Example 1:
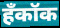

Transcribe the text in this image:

हँकॉक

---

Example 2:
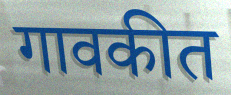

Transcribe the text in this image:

गावकीत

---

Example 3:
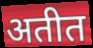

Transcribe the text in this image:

अतीत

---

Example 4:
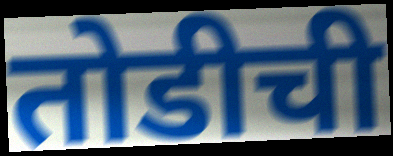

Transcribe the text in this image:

तोडीची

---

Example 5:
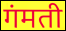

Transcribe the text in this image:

गंमती